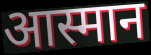
आस्मान